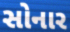
સોનાર